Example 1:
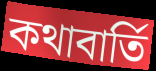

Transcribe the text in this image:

কথাবার্তি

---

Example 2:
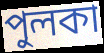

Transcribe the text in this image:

পুলকা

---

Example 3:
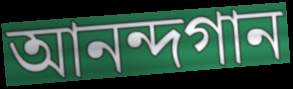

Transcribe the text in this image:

আনন্দগান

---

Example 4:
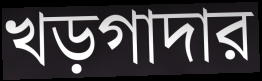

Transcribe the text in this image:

খড়গাদার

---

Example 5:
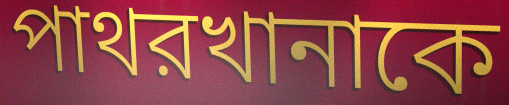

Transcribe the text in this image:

পাথরখানাকে